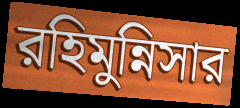
রহিমুন্নিসার